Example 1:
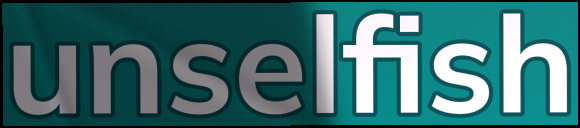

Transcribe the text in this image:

unselfish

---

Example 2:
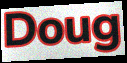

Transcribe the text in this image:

Doug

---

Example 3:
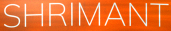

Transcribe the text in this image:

SHRIMANT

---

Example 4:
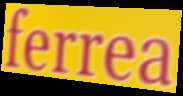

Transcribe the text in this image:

ferrea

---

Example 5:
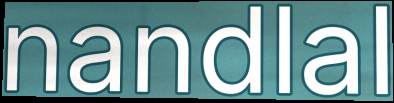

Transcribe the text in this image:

nandlal